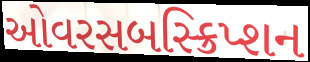
ઓવરસબસ્ક્રિપ્શન